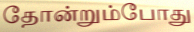
தோன்றும்போது